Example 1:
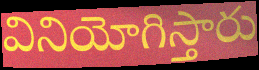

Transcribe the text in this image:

వినియోగిస్తారు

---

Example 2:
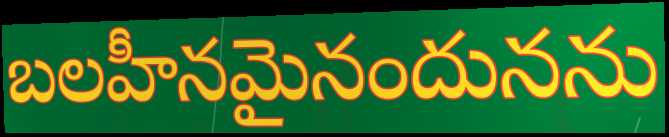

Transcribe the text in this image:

బలహీనమైనందునను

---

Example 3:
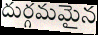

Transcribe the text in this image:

దుర్గమమైన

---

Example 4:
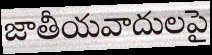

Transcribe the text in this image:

జాతీయవాదులపై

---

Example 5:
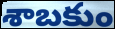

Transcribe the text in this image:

శాబకుం